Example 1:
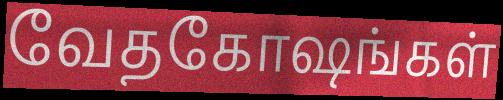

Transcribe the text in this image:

வேதகோஷங்கள்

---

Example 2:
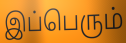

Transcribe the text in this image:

இப்பெரும்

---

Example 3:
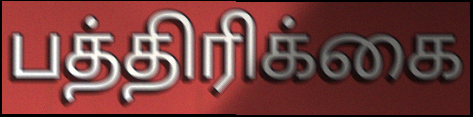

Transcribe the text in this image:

பத்திரிக்கை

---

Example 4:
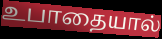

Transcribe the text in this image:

உபாதையால்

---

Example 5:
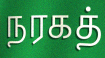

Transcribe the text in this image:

நரகத்